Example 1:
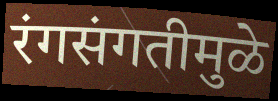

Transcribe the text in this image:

रंगसंगतीमुळे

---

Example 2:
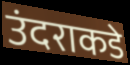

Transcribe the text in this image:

उंदराकडे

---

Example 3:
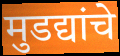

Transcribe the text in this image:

मुडद्यांचे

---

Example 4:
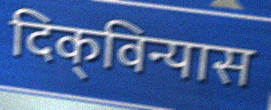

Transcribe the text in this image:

दिक्‌विन्यास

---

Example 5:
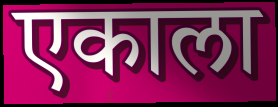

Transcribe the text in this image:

एकाला